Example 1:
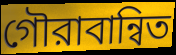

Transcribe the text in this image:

গৌরাবান্বিত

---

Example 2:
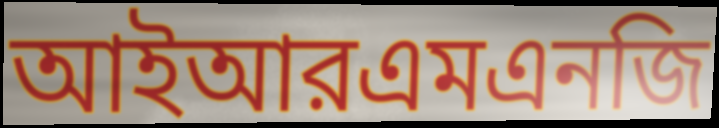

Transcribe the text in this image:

আইআরএমএনজি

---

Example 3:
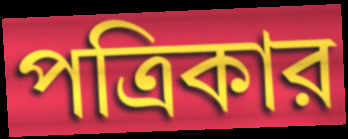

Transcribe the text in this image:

পত্রিকার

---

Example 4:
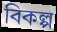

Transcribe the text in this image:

বিকল্প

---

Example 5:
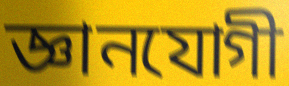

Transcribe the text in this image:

জ্ঞানযোগী